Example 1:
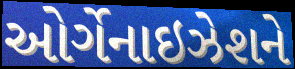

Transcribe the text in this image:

ઓર્ગેનાઇઝેશને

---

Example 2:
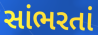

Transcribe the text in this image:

સાંભરતાં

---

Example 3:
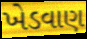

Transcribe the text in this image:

ખેડવાણ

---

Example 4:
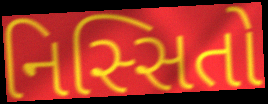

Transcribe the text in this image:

નિસ્સિતો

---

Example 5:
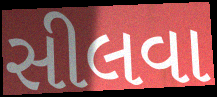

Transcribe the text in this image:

સીલવા